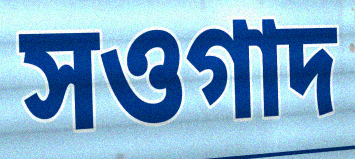
সওগাদ